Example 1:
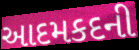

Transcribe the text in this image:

આદમકદની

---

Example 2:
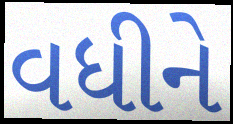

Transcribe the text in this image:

વધીને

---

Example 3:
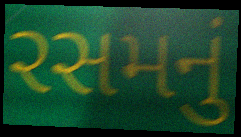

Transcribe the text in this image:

રસમનું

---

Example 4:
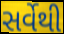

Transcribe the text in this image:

સર્વેથી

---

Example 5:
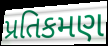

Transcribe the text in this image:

પ્રતિકમણ